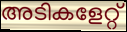
അടികളേറ്റ്